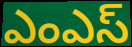
ఎంఎస్